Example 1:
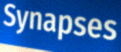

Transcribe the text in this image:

Synapses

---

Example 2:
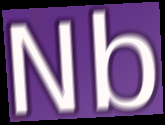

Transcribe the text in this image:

Nb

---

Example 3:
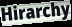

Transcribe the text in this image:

Hirarchy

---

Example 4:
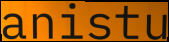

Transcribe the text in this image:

anistu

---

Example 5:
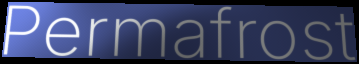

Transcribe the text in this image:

Permafrost